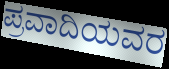
ಪ್ರವಾದಿಯವರ